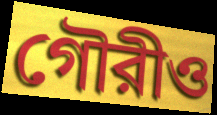
গৌরীও